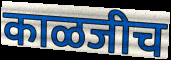
काळजीच